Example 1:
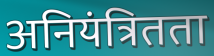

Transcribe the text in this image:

अनियंत्रितता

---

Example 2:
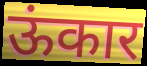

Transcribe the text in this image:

ऊंकार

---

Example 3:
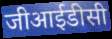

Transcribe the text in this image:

जीआईडीसी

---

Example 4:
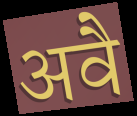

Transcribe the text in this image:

अवै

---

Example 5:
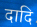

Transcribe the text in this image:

दादि